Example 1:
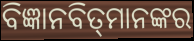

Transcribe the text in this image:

ବିଜ୍ଞାନବିତ୍‌ମାନଙ୍କର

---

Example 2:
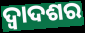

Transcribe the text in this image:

ଦ୍ୱାଦଶର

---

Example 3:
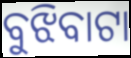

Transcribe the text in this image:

ବୁଝିବାଟା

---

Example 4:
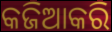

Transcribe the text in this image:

କଜିଆକରି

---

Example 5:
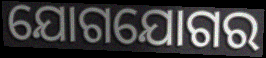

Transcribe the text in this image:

ଯୋଗଯୋଗର